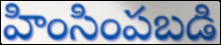
హింసింపబడి